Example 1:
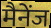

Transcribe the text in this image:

मैनेंज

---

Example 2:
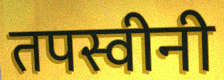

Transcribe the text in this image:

तपस्वीनी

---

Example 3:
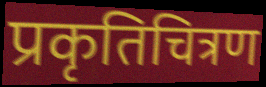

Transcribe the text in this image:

प्रकृतिचित्रण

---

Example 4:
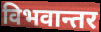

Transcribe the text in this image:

विभवान्तर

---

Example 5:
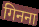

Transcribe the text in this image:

गिनना